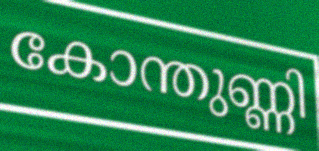
കോന്തുണ്ണി